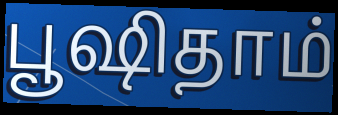
பூஷிதாம்